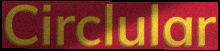
Circlular